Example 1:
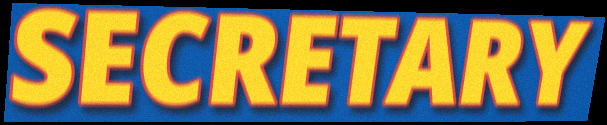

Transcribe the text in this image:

SECRETARY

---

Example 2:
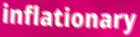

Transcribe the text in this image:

inflationary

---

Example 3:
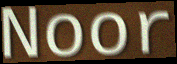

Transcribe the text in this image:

Noor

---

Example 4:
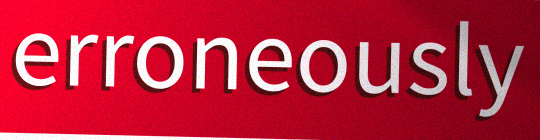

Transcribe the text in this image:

erroneously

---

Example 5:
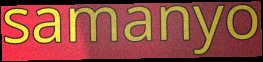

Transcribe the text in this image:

samanyo